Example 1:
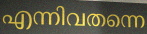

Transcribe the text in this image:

എന്നിവതന്നെ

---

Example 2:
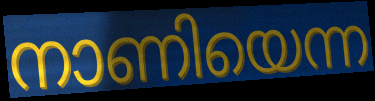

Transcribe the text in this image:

നാണിയെന്ന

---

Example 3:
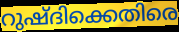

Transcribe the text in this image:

റുഷ്ദിക്കെതിരെ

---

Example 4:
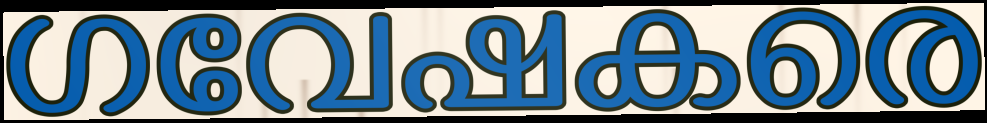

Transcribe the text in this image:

ഗവേഷകരെ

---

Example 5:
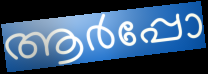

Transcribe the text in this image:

ആർപ്പോ